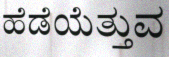
ಹೆಡೆಯೆತ್ತುವ